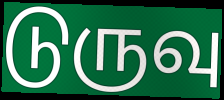
டுருவு